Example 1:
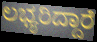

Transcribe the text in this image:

ಲಭ್ಯರಿದ್ದಾರೆ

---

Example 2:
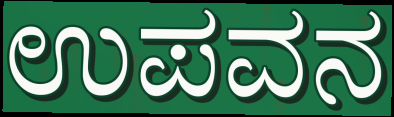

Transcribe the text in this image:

ಉಪವನ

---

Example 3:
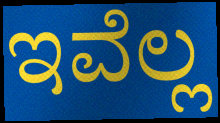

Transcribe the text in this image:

ಇವೆಲ್ಲ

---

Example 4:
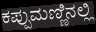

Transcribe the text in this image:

ಕಪ್ಪುಮಣ್ಣಿನಲ್ಲಿ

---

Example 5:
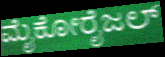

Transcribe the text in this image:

ಮೈಕೋರೈಜಲ್